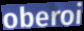
oberoi